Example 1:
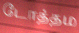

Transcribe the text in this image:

டோத்தம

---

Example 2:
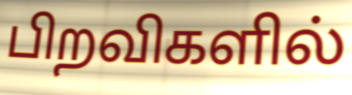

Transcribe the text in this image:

பிறவிகளில்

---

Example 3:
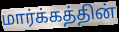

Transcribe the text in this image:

மார்க்கத்தின்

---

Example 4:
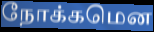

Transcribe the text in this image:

நோக்கமென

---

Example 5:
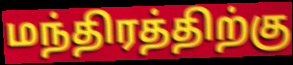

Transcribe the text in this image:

மந்திரத்திற்கு